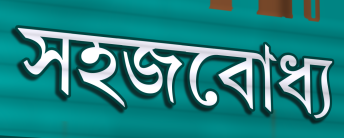
সহজবোধ্য